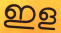
ഇള